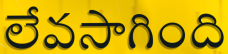
లేవసాగింది